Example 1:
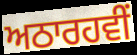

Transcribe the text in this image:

ਅਠਾਰਹਵੀਂ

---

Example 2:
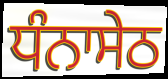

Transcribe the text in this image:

ਧੰਨਾਸੇਠ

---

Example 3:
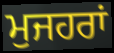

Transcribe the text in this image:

ਮੁਜਹਰਾਂ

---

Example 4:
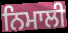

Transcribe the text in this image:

ਨਿਮਾਲੀ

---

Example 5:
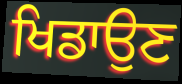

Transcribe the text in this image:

ਖਿਡਾਉਣ